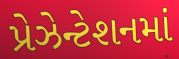
પ્રેઝેન્ટેશનમાં